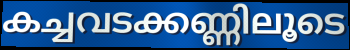
കച്ചവടക്കണ്ണിലൂടെ